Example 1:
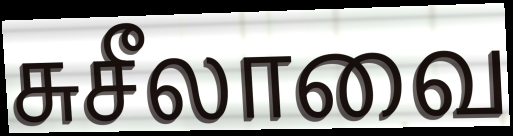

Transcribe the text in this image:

சுசீலாவை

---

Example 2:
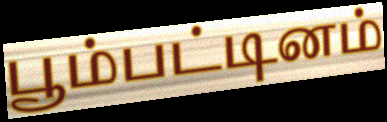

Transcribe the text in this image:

பூம்பட்டினம்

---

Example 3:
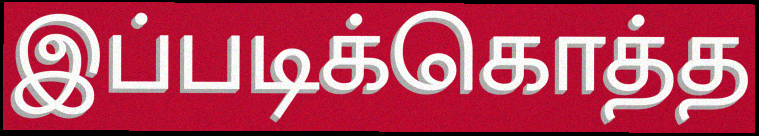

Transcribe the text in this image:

இப்படிக்கொத்த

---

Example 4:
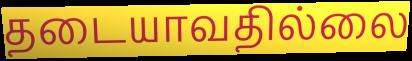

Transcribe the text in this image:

தடையாவதில்லை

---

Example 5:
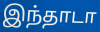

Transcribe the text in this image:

இந்தாடா